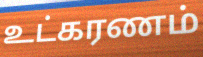
உட்கரணம்